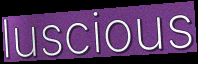
luscious